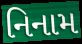
નિનામ